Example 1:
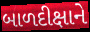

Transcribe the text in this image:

બાળદીક્ષાને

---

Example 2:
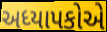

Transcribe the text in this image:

અધ્યાપકોએ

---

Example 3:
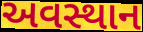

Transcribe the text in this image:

અવસ્થાન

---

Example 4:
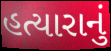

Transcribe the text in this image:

હત્યારાનું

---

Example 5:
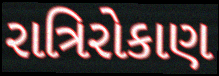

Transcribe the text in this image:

રાત્રિરોકાણ